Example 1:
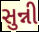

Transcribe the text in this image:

સુન્ની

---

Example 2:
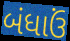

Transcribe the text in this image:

બંધાઉં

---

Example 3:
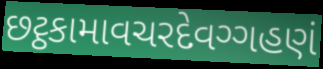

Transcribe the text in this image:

છટ્ઠકામાવચરદેવગ્ગહણં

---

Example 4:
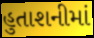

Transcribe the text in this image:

હુતાશનીમાં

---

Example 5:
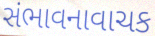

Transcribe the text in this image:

સંભાવનાવાચક